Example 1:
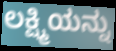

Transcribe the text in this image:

ಲಕ್ಷ್ಮಿಯನ್ನು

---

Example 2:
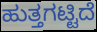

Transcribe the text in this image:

ಹುತ್ತಗಟ್ಟಿದೆ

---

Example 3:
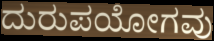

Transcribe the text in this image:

ದುರುಪಯೋಗವು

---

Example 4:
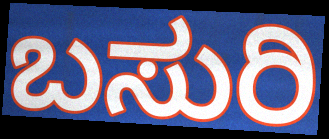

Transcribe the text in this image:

ಬಸುರಿ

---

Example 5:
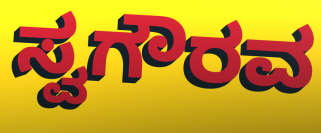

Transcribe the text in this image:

ಸ್ವಗೌರವ